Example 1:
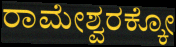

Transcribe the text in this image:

ರಾಮೇಶ್ವರಕ್ಕೋ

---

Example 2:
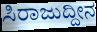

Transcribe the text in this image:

ಸಿರಾಜುದ್ದೀನ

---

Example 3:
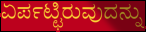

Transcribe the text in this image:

ಏರ್ಪಟ್ಟಿರುವುದನ್ನು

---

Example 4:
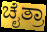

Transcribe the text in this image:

ಚೈತ್ರಾ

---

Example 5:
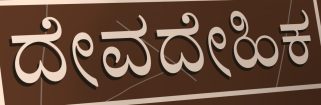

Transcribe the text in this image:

ದೇವದೇಹಿಕ